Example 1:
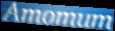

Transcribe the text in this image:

Amomum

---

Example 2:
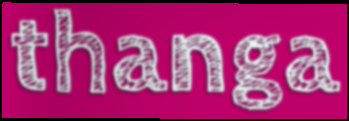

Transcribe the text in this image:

thanga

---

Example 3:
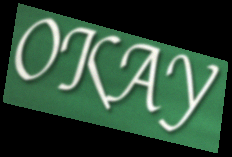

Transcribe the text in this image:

OKAY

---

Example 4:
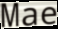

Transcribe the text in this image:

Mae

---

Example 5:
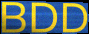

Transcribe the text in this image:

BDD